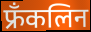
फ्रँकलिन